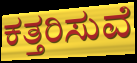
ಕತ್ತರಿಸುವೆ